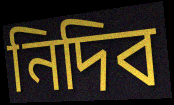
নিদিব